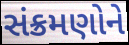
સંક્રમણોને